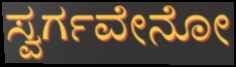
ಸ್ವರ್ಗವೇನೋ